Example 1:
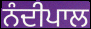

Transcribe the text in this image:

ਨੰਦੀਪਾਲ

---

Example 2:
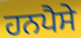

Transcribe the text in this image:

ਹਨਪੈਸੇ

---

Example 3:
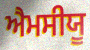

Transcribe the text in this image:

ਐਮਸੀਯੂ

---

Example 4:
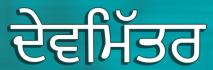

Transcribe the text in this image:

ਦੇਵਮਿੱਤਰ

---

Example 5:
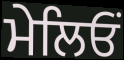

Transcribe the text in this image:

ਮੇਲਿਓਂ